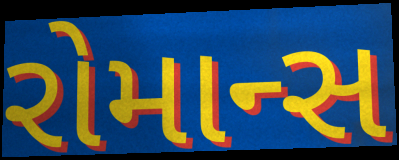
રોમાન્સ